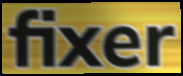
fixer